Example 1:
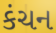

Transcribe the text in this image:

કંચન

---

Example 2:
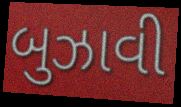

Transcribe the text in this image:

બુઝાવી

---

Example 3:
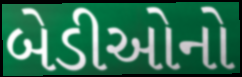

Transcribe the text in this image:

બેડીઓનો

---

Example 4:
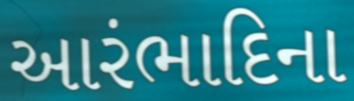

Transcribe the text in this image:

આરંભાદિના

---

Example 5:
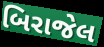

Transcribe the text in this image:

બિરાજેલ